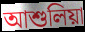
আশুলিয়া